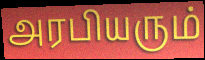
அரபியரும்